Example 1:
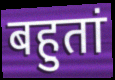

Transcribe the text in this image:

बहुतां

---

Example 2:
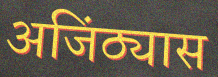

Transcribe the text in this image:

अजिंठ्यास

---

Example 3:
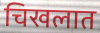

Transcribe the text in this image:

चिखलात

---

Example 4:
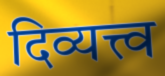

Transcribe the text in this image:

दिव्यत्त्व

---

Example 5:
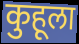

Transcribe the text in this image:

कुहूला